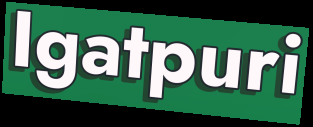
Igatpuri